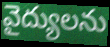
వైద్యులను